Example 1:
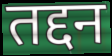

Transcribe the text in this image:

तद्दन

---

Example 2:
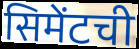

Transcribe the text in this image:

सिमेंटची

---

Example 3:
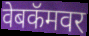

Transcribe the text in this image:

वेबकॅमवर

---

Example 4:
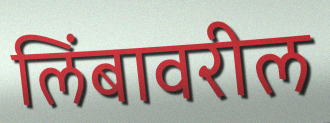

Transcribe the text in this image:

लिंबावरील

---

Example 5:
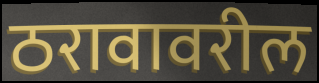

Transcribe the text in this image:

ठरावावरील